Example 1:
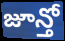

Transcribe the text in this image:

జూన్తో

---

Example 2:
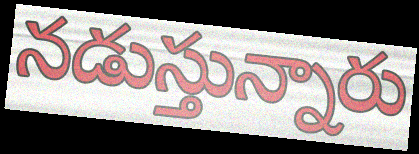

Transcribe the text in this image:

నడుస్తున్నారు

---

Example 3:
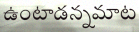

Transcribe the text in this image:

ఉంటాడన్నమాట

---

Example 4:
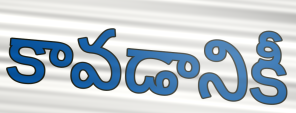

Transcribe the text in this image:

కావడానికీ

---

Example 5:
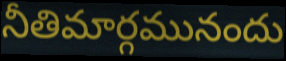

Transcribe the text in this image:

నీతిమార్గమునందు